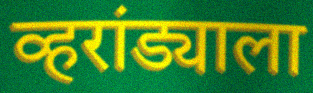
व्हरांड्याला